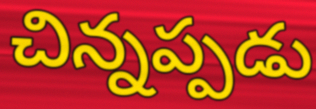
చిన్నప్పడు